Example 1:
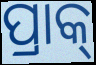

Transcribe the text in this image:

ପ୍ରାକ୍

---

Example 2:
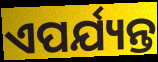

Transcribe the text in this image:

ଏପର୍ଯ୍ୟନ୍ତ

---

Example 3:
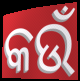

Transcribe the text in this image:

କଉଁ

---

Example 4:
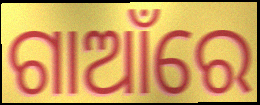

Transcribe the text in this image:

ଗାଆଁରେ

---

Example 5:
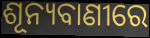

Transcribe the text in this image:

ଶୂନ୍ୟବାଣୀରେ